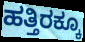
ಹತ್ತಿರಕ್ಕೂ